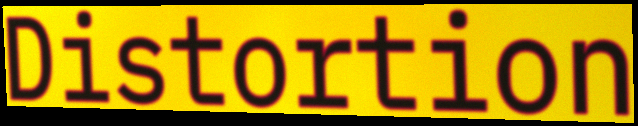
Distortion